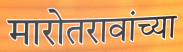
मारोतरावांच्या